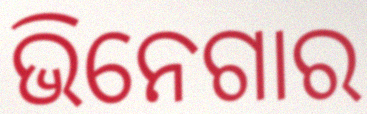
ଭିନେଗାର